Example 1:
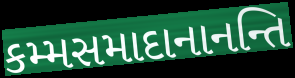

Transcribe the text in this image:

કમ્મસમાદાનાનન્તિ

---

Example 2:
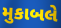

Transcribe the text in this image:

મુકાબલે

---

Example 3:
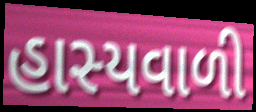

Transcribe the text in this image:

હાસ્યવાળી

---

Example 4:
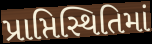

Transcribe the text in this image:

પ્રાપ્તિસ્થિતિમાં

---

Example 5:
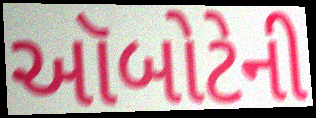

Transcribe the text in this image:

ઑબોટેની